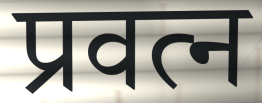
प्रवत्न